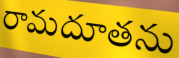
రామదూతను